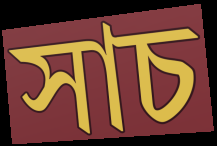
সাচ